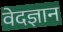
वेदज्ञान